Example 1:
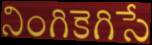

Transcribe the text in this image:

నింగికెగిసే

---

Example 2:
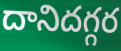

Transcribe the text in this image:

దానిదగ్గర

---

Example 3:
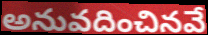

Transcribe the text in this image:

అనువదించినవే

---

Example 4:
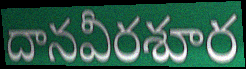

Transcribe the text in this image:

దానవీరశూర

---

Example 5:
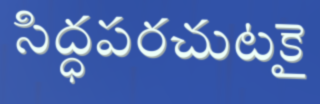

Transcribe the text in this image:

సిద్ధపరచుటకై